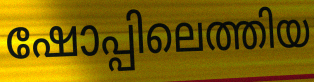
ഷോപ്പിലെത്തിയ